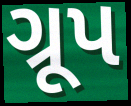
ગ્રૂપ